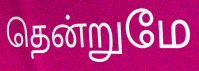
தென்றுமே